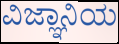
ವಿಜ್ಞಾನಿಯ